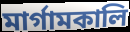
মাৰ্গামকালি